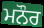
ਮਨੌਰ